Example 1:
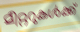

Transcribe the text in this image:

മീറ്ററുകൾക്ക്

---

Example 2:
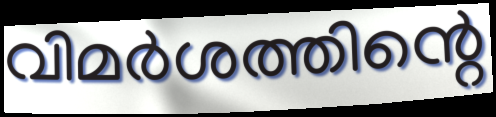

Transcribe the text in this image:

വിമർശത്തിന്റെ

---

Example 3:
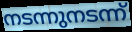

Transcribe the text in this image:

നടന്നുനടന്ന്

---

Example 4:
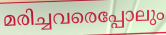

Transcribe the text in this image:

മരിച്ചവരെപ്പോലും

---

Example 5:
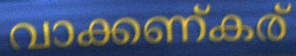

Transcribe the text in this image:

വാക്കണ്കര്